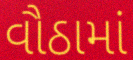
વૌઠામાં